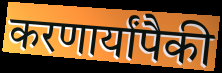
करणार्यांपैकी